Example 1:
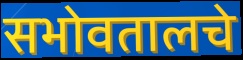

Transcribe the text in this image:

सभोवतालचे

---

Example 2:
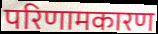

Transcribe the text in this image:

परिणामकारण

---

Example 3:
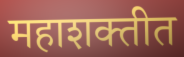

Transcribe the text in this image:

महाशक्तीत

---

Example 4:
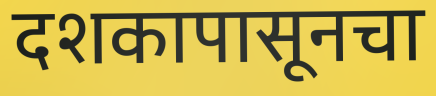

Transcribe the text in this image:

दशकापासूनचा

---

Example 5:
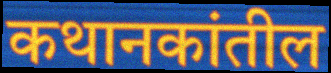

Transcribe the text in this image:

कथानकांतील